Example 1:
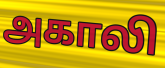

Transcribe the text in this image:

அகாலி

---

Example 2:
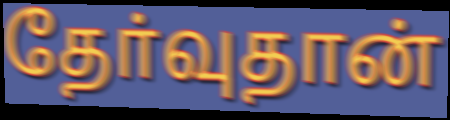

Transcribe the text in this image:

தேர்வுதான்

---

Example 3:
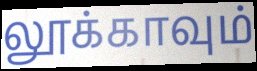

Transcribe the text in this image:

லூக்காவும்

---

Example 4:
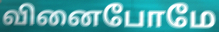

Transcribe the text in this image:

வினைபோமே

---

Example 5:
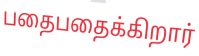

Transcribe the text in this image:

பதைபதைக்கிறார்